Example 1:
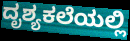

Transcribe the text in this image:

ದೃಶ್ಯಕಲೆಯಲ್ಲಿ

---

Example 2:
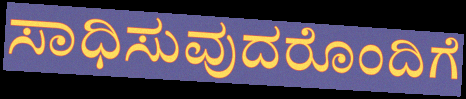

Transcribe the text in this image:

ಸಾಧಿಸುವುದರೊಂದಿಗೆ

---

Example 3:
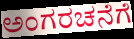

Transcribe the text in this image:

ಅಂಗರಚನೆಗೆ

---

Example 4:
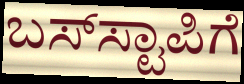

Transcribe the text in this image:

ಬಸ್‌ಸ್ಟಾಪಿಗೆ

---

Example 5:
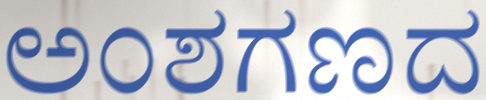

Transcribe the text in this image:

ಅಂಶಗಣದ